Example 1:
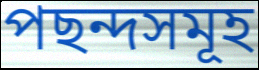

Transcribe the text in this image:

পছন্দসমূহ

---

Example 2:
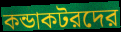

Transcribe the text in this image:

কন্ডাকটরদের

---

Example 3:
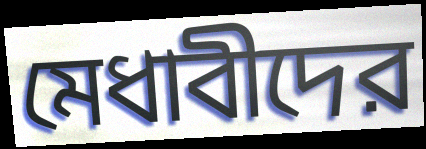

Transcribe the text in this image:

মেধাবীদের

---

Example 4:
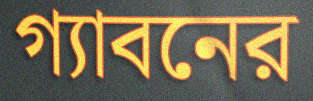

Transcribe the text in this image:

গ্যাবনের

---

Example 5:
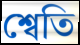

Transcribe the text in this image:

শ্বেতি